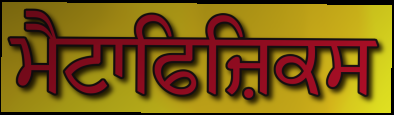
ਮੈਟਾਫਿਜ਼ਿਕਸ